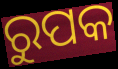
ରୁପକ